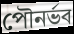
পৌনর্ভব